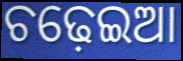
ଚଢ଼େଇଆ